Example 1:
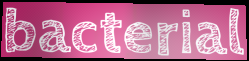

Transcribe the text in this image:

bacterial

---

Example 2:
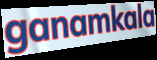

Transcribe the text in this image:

ganamkala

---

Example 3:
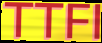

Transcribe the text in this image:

TTFI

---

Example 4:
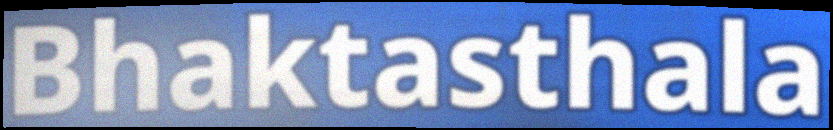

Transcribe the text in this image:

Bhaktasthala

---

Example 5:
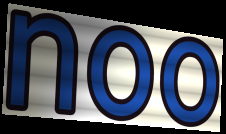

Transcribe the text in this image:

noo